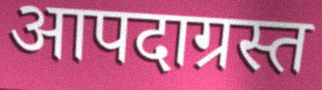
आपदाग्रस्त